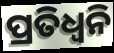
ପ୍ରତିଧ୍ବନି